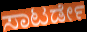
ಸಾಟರ್ಡೇ